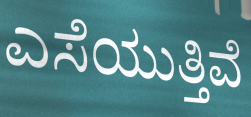
ಎಸೆಯುತ್ತಿವೆ